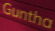
Guntha